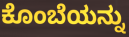
ಕೊಂಬೆಯನ್ನು